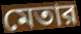
মেতার